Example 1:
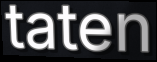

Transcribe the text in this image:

taten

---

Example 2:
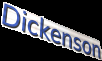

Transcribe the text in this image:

Dickenson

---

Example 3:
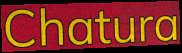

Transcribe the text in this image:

Chatura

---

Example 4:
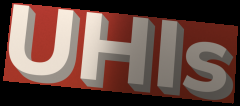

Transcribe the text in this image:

UHIs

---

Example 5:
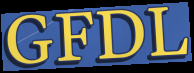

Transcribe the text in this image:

GFDL